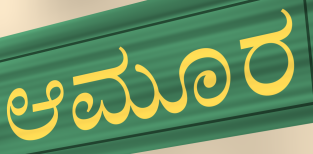
ಆಮೂರ